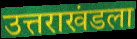
उत्तराखंडला